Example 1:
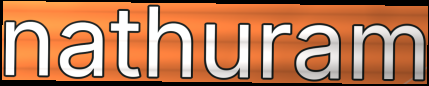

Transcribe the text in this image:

nathuram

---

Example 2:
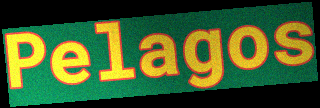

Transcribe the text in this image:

Pelagos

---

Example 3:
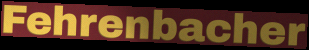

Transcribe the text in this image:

Fehrenbacher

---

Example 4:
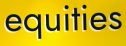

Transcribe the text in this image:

equities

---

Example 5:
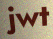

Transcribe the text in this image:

jwt